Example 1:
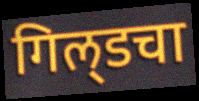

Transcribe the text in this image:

गिल्डचा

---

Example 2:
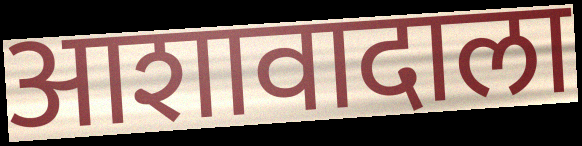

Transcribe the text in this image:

आशावादाला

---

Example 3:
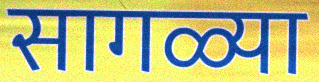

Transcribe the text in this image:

सागळ्या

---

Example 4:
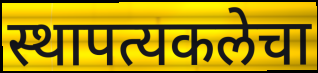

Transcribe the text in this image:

स्थापत्यकलेचा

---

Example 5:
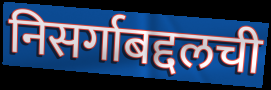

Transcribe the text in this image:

निसर्गाबद्दलची